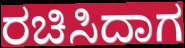
ರಚಿಸಿದಾಗ